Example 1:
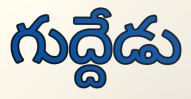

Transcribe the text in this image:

గుద్దేడు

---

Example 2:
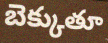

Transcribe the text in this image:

బెక్కుతూ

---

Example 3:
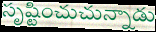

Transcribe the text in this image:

సృష్టించుచున్నాడు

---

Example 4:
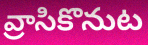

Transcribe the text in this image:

వ్రాసికొనుట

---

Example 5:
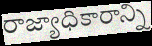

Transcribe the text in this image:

రాజ్యాధికారాన్ని